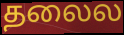
தலைல